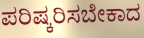
ಪರಿಷ್ಕರಿಸಬೇಕಾದ